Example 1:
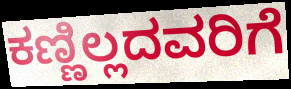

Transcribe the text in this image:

ಕಣ್ಣಿಲ್ಲದವರಿಗೆ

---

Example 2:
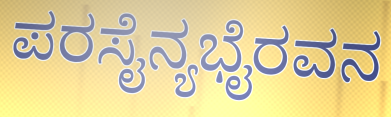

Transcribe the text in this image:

ಪರಸೈನ್ಯಭೈರವನ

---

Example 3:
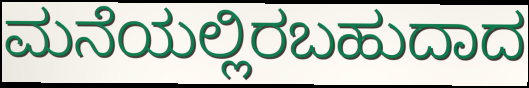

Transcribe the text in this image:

ಮನೆಯಲ್ಲಿರಬಹುದಾದ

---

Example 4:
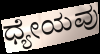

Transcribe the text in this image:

ಧ್ಯೇಯವು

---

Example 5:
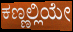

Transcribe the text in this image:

ಕಣ್ಣಲ್ಲಿಯೇ